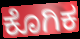
ಕೊಗಿಕ